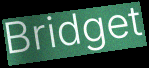
Bridget